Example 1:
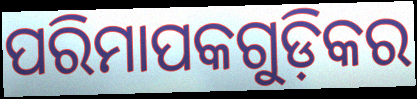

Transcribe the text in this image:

ପରିମାପକଗୁଡ଼ିକର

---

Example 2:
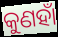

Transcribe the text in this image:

କୁଣହାଁ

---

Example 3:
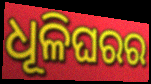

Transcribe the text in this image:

ଧୂଳିଘରର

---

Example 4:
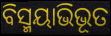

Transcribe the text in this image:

ବିସ୍ମୟାଭିଭୂତ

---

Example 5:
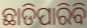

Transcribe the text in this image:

ଛାଡିପାରିବି